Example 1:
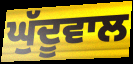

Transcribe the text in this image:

ਘੁੱਦੂਵਾਲ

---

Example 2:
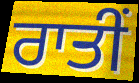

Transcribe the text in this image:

ਰਾਤੀਂ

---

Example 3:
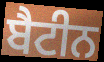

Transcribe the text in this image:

ਬੈਟੀਨ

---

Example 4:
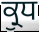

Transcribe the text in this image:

ਕ੍ਰੁਧ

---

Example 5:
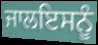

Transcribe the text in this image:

ਜਾਲਇਸਨੂੰ